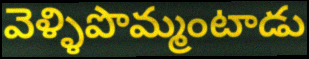
వెళ్ళిపొమ్మంటాడు